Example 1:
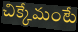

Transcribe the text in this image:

చిక్కేమంటే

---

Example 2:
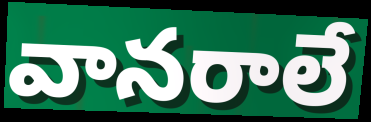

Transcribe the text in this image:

వానరాలే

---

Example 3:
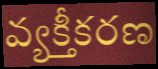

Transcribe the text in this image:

వ్యక్తీకరణ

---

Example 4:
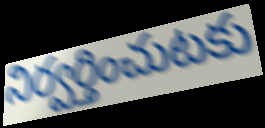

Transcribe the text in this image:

నిర్వర్తించుటకు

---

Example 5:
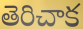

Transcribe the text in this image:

తెరిచాక